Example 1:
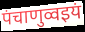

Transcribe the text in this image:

पंचाणुव्वइयं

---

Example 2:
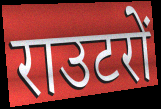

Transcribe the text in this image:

राउटरों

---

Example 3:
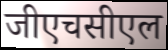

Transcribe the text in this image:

जीएचसीएल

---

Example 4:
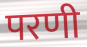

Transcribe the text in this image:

परणी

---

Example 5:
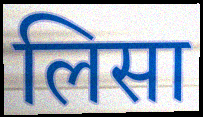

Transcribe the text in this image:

लिसा